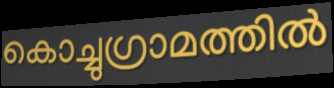
കൊച്ചുഗ്രാമത്തിൽ